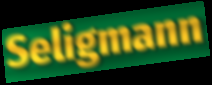
Seligmann